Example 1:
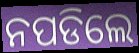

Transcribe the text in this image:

ନପଡିଲେ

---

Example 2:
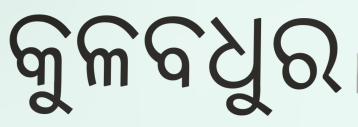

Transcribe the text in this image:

କୁଳବଧୁର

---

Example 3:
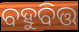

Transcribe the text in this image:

ବହୁବିତ୍ତ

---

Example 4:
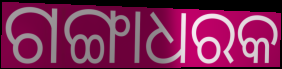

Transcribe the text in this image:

ଗଙ୍ଗାଧରକ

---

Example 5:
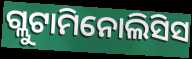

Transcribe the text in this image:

ଗ୍ଲୁଟାମିନୋଲିସିସ